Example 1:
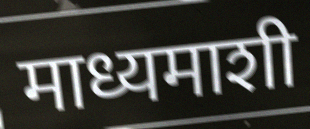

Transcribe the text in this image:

माध्यमाशी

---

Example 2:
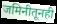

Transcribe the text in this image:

जमिनीतूनही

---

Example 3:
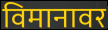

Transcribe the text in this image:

विमानावर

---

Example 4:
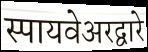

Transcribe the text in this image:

स्पायवेअरद्वारे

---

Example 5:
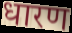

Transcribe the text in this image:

धारण